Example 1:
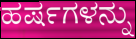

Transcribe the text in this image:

ಹರ್ಷಗಳನ್ನು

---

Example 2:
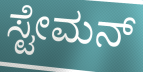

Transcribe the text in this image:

ಸ್ಟೇಮನ್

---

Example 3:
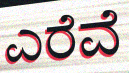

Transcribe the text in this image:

ಎರೆವೆ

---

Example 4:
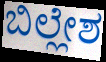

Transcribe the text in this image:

ಬಿಲ್ಲೇಶ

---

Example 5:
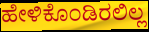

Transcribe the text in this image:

ಹೇಳಿಕೊಂಡಿರಲಿಲ್ಲ